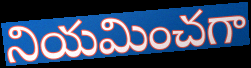
నియమించగా